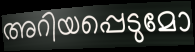
അറിയപ്പെടുമോ